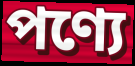
পণ্যে